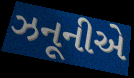
ઝનૂનીએ